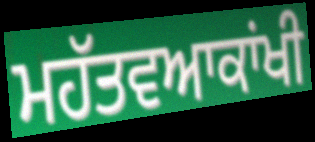
ਮਹੱਤਵਆਕਾਂਖੀ